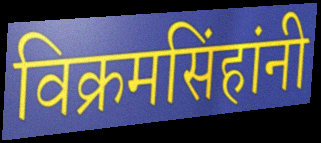
विक्रमसिंहांनी